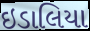
ઇડાલિયા